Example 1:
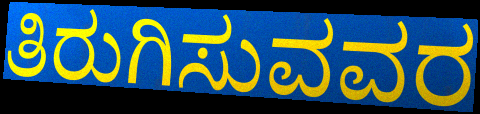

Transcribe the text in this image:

ತಿರುಗಿಸುವವರ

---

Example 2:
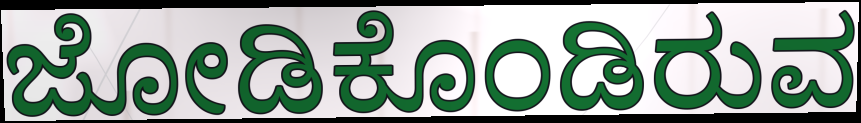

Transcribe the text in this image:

ಜೋಡಿಕೊಂಡಿರುವ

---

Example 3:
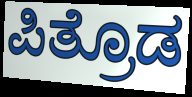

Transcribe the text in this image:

ಪಿತ್ರೊಡ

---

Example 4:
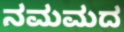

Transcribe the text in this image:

ನಮಮದ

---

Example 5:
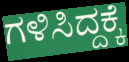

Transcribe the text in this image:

ಗಳಿಸಿದ್ದಕ್ಕೆ